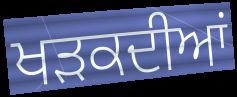
ਖੜਕਦੀਆਂ